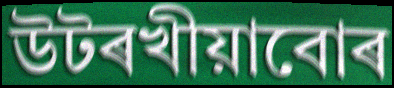
উটৰখীয়াবোৰ